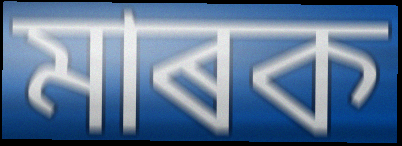
মাৰক